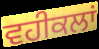
ਵਹੀਕਲਾਂ